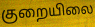
குறையிலை